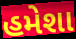
હમેશા